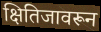
क्षितिजावरून